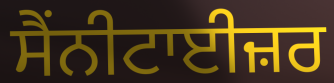
ਸੈਂਨੀਟਾਈਜ਼ਰ